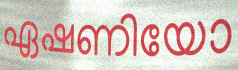
ഏഷണിയോ